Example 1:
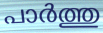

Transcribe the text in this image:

പാർത്തു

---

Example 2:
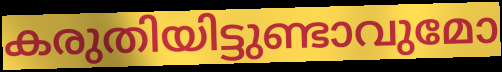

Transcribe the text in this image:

കരുതിയിട്ടുണ്ടാവുമോ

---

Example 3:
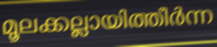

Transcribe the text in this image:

മൂലക്കല്ലായിത്തീർന്ന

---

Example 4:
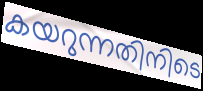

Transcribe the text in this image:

കയറുന്നതിനിടെ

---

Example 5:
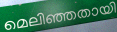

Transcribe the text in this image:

മെലിഞ്ഞതായി